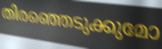
തിരഞ്ഞെടുക്കുമോ